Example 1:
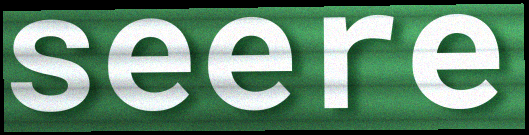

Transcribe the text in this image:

seere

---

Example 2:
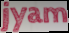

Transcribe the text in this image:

jyam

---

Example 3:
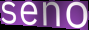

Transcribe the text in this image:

seno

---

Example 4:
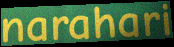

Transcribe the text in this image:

narahari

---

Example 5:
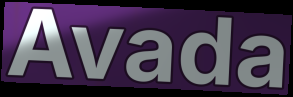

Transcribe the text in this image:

Avada